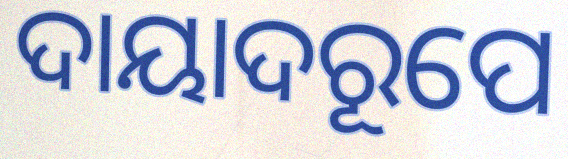
ଦାୟାଦରୂପେ